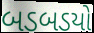
બડબડયો